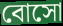
বোসো